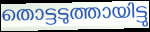
തൊട്ടടുത്തായിട്ടു